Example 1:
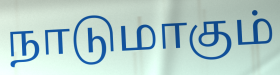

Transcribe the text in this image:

நாடுமாகும்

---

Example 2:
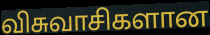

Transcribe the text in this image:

விசுவாசிகளான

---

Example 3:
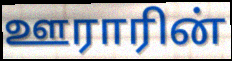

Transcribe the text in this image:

ஊராரின்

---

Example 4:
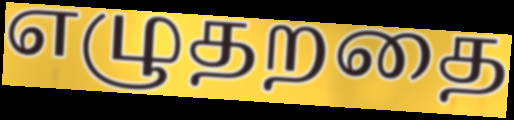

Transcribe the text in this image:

எழுதறதை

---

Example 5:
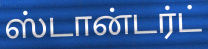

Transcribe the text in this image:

ஸ்டான்டர்ட்